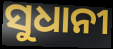
ସୁଧାନୀ